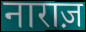
नाराज़